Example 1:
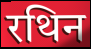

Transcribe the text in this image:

रथिन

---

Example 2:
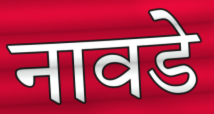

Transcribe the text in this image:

नावडे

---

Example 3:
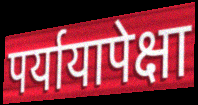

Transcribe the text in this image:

पर्यायापेक्षा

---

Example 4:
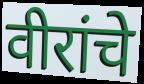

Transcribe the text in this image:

वीरांचे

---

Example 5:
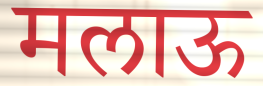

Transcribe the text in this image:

मलाऊ